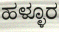
ಹಳ್ಳೂರ